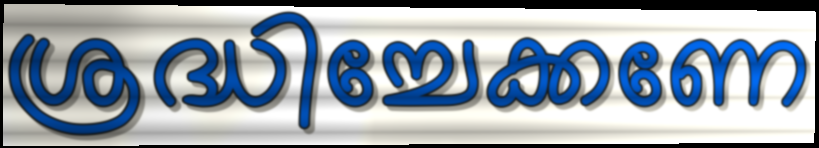
ശ്രദ്ധിച്ചേക്കണേ